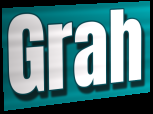
Grah